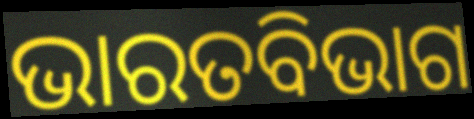
ଭାରତବିଭାଗ